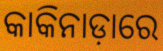
କାକିନାଡ଼ାରେ